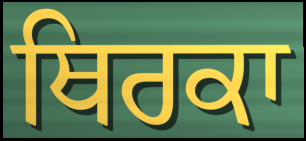
ਥਿਰਕਾ